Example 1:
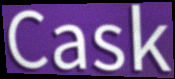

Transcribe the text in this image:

Cask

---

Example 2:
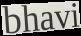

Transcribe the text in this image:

bhavi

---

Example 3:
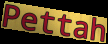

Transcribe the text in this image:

Pettah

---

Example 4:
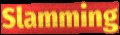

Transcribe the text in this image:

Slamming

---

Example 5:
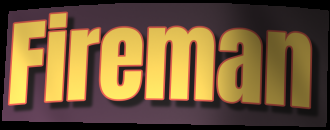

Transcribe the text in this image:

Fireman